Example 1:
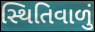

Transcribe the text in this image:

સ્થિતિવાળું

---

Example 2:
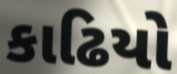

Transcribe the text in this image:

કાઢિયો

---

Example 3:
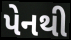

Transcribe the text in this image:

પેનથી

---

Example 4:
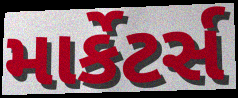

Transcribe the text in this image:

માર્કેટર્સ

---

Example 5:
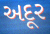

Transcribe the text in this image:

અદૂર